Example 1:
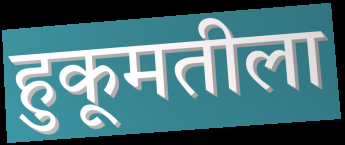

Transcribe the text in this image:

हुकूमतीला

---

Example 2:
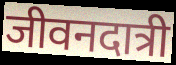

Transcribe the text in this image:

जीवनदात्री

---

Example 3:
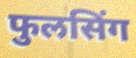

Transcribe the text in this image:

फुलसिंग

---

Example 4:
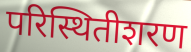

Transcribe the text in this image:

परिस्थितीशरण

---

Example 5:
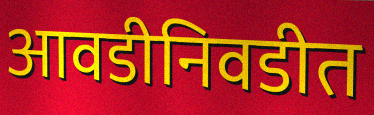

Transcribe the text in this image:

आवडीनिवडीत